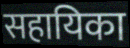
सहायिका